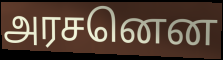
அரசனென